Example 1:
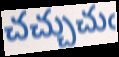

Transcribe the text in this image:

చచ్చుచుఁ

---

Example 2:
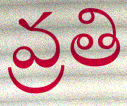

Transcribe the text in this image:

వ్రతి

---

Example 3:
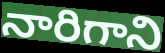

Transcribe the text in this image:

నారిగాని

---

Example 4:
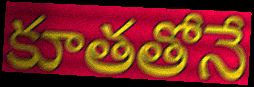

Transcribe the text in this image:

కూతతోనే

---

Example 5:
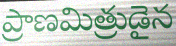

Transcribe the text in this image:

ప్రాణమిత్రుడైన